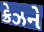
ક્રેઝને